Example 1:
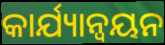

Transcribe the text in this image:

କାର୍ଯ୍ୟାନ୍ବୟନ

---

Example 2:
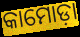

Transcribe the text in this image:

କାମୋଡ଼ା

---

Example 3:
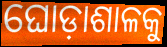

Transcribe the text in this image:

ଘୋଡ଼ାଶାଳକୁ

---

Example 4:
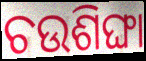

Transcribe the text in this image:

ଚଉଶିଙ୍ଘା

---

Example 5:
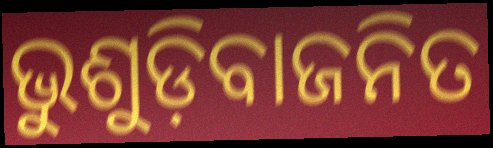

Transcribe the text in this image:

ଭୁଶୁଡ଼ିବାଜନିତ